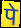
पे